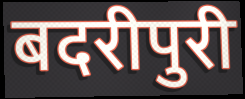
बदरीपुरी